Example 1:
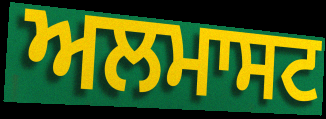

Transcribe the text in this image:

ਅਲਮਾਸਟ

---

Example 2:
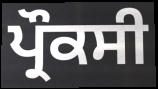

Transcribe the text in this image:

ਪ੍ਰੌਕਸੀ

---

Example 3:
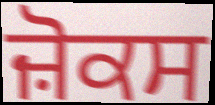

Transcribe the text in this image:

ਜ਼ੋਕਸ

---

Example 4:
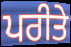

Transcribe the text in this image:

ਪਰੀਤੇ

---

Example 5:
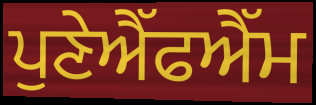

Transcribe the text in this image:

ਪੁਣੇਐੱਫਐੱਮ